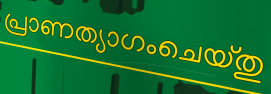
പ്രാണത്യാഗംചെയ്തു